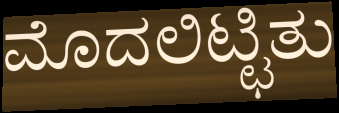
ಮೊದಲಿಟ್ಟಿತು